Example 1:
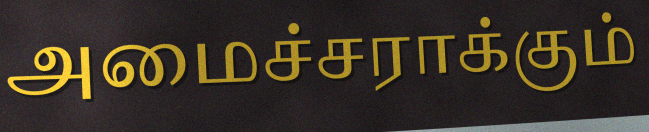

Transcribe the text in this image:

அமைச்சராக்கும்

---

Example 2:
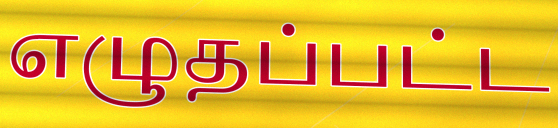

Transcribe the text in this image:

எழுதப்பட்ட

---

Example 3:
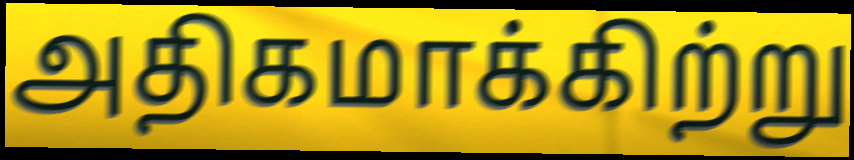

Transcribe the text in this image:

அதிகமாக்கிற்று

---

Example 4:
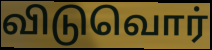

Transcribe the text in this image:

விடுவொர்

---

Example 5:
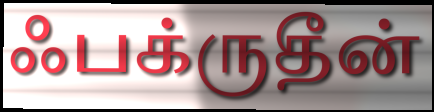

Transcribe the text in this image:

ஃபக்ருதீன்